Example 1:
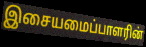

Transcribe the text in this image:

இசையமைப்பாளரின்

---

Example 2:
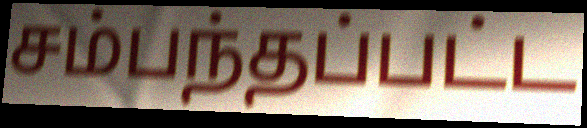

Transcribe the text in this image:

சம்பந்தப்பட்ட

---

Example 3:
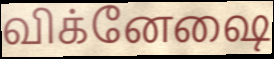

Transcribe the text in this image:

விக்னேஷை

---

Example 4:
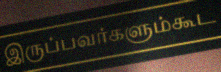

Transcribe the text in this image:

இருப்பவர்களும்கூட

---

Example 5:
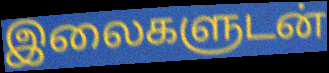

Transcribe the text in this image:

இலைகளுடன்